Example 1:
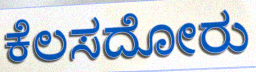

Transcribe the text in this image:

ಕೆಲಸದೋರು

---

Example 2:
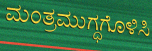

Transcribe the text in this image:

ಮಂತ್ರಮುಗ್ಧಗೊಳಿಸಿ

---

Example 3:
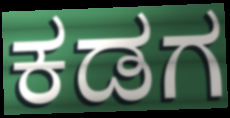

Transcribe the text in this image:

ಕಡಗ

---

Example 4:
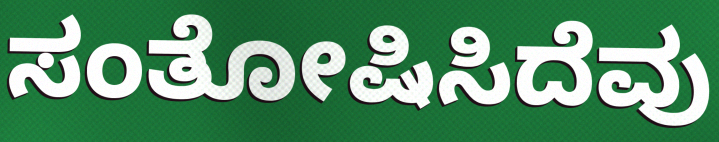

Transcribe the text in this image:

ಸಂತೋಷಿಸಿದೆವು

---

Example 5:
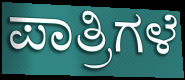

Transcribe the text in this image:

ಪಾತ್ರಿಗಳೆ